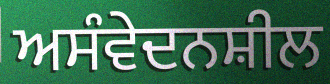
ਅਸੰਵੇਦਨਸ਼ੀਲ